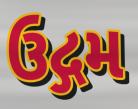
ઉદ્ગમ